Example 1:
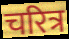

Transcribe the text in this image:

चरित्र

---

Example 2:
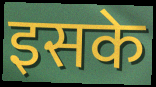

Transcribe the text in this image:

इसके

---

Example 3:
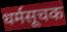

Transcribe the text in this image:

धर्मसूचक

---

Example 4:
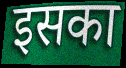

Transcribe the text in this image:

इसका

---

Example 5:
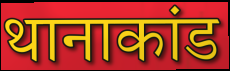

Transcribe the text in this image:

थानाकांड